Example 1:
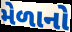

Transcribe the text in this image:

મેળાનો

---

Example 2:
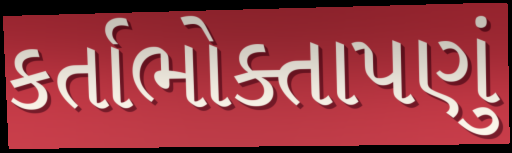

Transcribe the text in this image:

કર્તાભોક્તાપણું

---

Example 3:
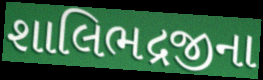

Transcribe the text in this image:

શાલિભદ્રજીના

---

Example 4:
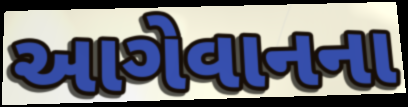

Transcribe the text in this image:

આગેવાનના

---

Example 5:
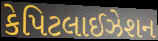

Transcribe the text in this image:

કેપિટલાઈઝેશન